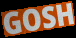
GOSH